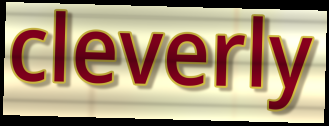
cleverly